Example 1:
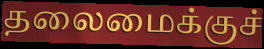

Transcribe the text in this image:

தலைமைக்குச்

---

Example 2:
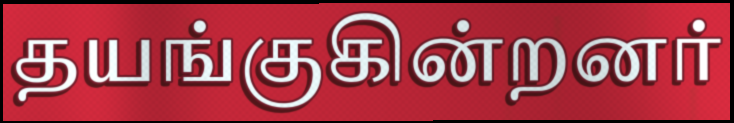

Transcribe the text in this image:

தயங்குகின்றனர்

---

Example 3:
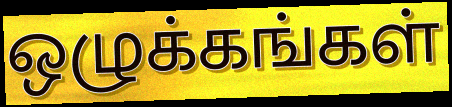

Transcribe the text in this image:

ஒழுக்கங்கள்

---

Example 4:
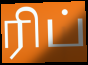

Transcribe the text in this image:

ரிப்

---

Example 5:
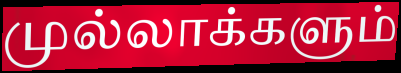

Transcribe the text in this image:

முல்லாக்களும்